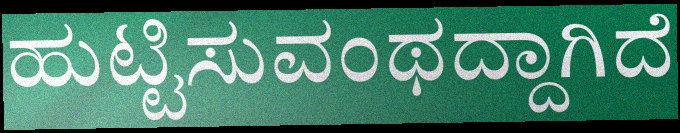
ಹುಟ್ಟಿಸುವಂಥದ್ದಾಗಿದೆ